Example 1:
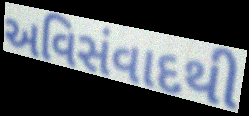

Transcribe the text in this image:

અવિસંવાદથી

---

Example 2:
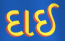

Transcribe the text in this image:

દાઈ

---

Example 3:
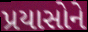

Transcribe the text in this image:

પ્રયાસોને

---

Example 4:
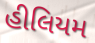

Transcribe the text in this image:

હીલિયમ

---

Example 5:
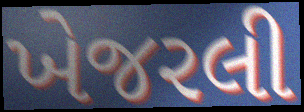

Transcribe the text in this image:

ખેજરલી